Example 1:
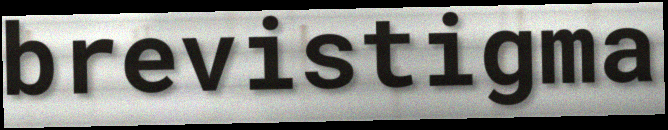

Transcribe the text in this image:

brevistigma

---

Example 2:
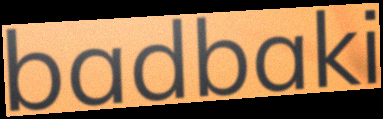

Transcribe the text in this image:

badbaki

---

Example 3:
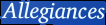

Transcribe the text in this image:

Allegiances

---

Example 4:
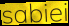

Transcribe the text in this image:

sabiei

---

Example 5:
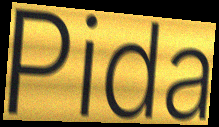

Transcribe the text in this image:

Pida